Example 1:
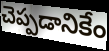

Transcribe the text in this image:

చెప్పడానికేం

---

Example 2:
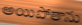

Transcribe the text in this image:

అయిపోతాను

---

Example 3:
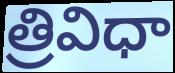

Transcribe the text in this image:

త్రివిధా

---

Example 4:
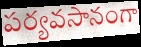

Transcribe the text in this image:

పర్యవసానంగా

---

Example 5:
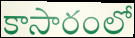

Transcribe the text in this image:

కాసారంలో